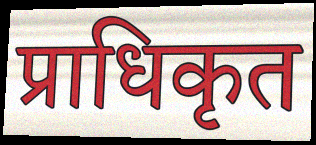
प्राधिकृत